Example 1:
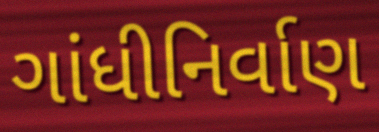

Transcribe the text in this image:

ગાંધીનિર્વાણ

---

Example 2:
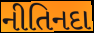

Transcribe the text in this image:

નીતિનદા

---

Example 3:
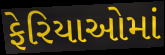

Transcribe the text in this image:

ફેરિયાઓમાં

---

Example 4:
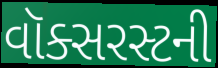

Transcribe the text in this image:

વૉક્સરસ્ટની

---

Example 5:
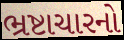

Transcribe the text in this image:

ભ્રષ્ટાચારનો